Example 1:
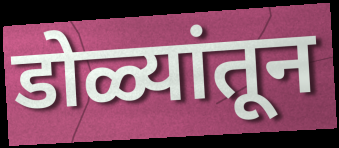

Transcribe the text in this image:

डोळ्यांतून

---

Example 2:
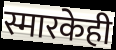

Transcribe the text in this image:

स्मारकेही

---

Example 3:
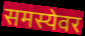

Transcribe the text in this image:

समस्येवर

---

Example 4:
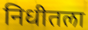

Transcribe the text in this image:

निधीतला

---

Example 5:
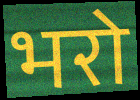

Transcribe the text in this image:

भरो